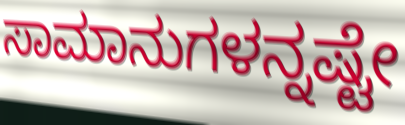
ಸಾಮಾನುಗಳನ್ನಷ್ಟೇ